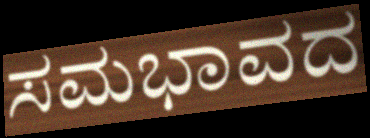
ಸಮಭಾವದ